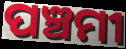
ପଞ୍ଚମୀ